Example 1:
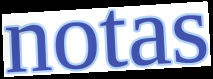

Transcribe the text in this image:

notas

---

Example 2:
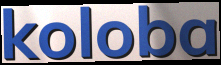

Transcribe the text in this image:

koloba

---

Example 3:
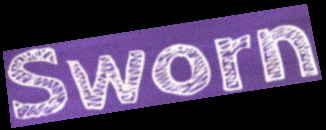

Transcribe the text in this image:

Sworn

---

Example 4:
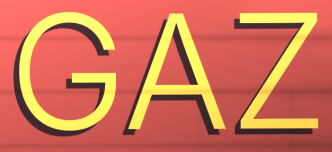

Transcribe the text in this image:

GAZ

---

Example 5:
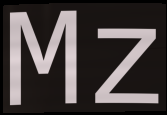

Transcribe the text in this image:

Mz